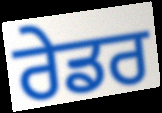
ਰੇਡਰ